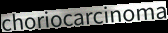
choriocarcinoma